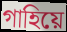
গাহিয়ে